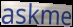
askme